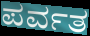
ಪರ್ವತ